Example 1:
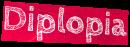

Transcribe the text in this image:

Diplopia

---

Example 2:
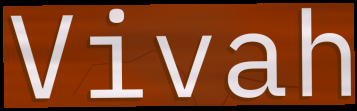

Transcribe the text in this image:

Vivah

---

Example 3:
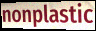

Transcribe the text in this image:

nonplastic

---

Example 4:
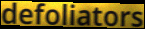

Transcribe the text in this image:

defoliators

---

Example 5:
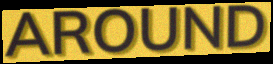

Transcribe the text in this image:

AROUND